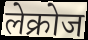
लेक्रोज